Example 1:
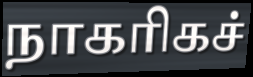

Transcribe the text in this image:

நாகரிகச்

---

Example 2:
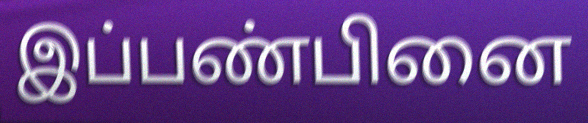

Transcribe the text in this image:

இப்பண்பினை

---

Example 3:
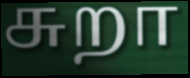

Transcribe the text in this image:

சுறா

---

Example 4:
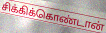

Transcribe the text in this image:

சிக்கிக்கொண்டான்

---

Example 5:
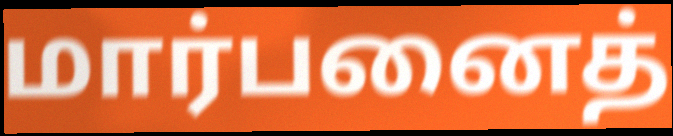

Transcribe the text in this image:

மார்பனைத்